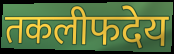
तकलीफदेय